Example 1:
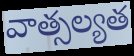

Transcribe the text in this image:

వాత్సల్యత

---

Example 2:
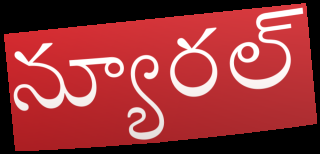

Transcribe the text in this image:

న్యూరల్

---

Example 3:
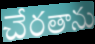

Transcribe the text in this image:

చేరతాను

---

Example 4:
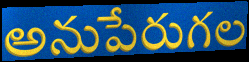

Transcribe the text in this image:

అనుపేరుగల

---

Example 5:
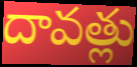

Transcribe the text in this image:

దావత్లు